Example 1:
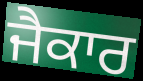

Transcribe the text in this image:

ਜੈਕਾਰ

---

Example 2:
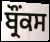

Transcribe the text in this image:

ਬ੍ਰੌਂਕਸ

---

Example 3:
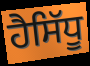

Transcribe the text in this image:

ਹੈਸਿੱਧੂ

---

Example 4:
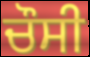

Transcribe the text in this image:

ਚੌਸੀ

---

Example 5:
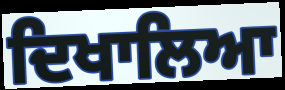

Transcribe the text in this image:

ਦਿਖਾਲਿਆ